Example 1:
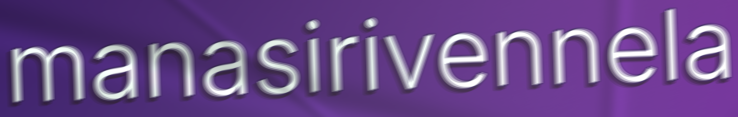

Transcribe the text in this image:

manasirivennela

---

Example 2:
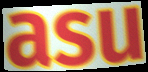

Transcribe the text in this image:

asu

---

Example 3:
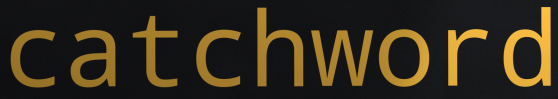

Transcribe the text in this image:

catchword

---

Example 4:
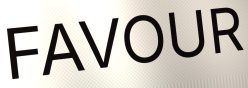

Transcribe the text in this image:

FAVOUR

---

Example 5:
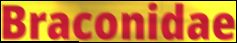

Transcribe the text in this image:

Braconidae